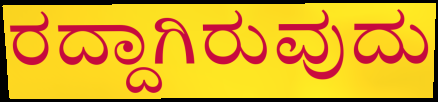
ರದ್ದಾಗಿರುವುದು